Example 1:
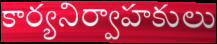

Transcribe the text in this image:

కార్యనిర్వాహకులు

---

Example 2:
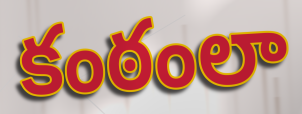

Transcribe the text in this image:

కంఠంలా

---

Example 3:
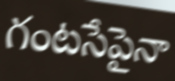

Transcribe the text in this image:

గంటసేపైనా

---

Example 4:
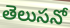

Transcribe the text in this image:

తెలుసనో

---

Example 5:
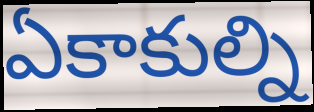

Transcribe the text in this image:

ఏకాకుల్ని